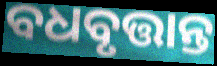
ବଧବୃତ୍ତାନ୍ତ